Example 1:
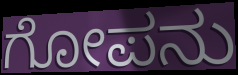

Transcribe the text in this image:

ಗೋಪನು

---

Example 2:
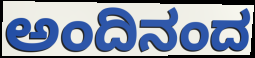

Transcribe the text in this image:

ಅಂದಿನಂದ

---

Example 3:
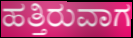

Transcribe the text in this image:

ಹತ್ತಿರುವಾಗ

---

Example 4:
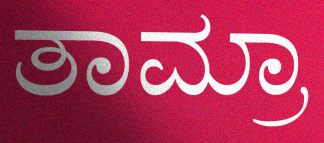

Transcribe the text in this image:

ತಾಮ್ರಾ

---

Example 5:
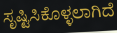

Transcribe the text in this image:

ಸೃಷ್ಟಿಸಿಕೊಳ್ಳಲಾಗಿದೆ